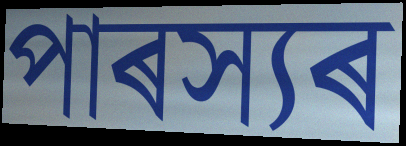
পাৰস্যৰ